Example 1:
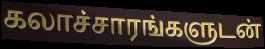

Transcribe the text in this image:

கலாச்சாரங்களுடன்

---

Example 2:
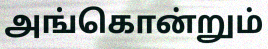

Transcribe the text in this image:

அங்கொன்றும்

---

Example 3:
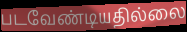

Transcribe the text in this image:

படவேண்டியதில்லை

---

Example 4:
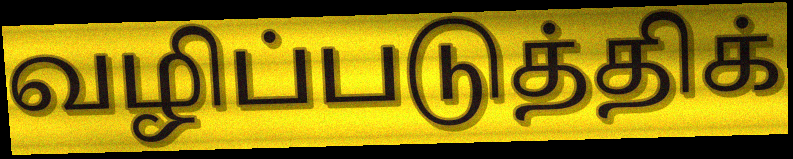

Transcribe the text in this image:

வழிப்படுத்திக்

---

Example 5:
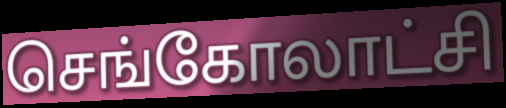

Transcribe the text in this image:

செங்கோலாட்சி